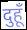
दुहूँ